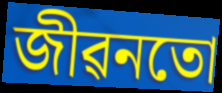
জীৱনতো